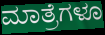
ಮಾತ್ರೆಗಳೂ